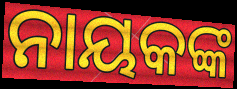
ନାୟକଙ୍କ